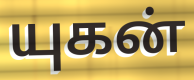
யுகன்